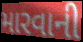
મારવાની